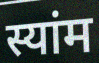
स्यांम